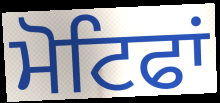
ਮੋਟਿਫਾਂ